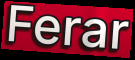
Ferar